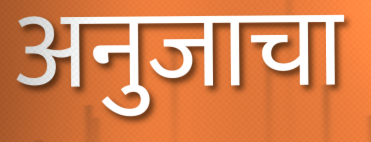
अनुजाचा